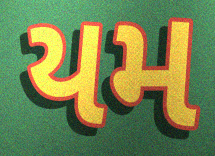
યમ